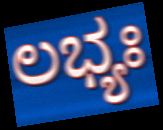
ಲಭ್ಯಃ